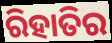
ରିହାତିର